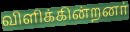
விளிக்கின்றனர்